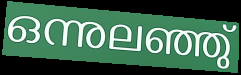
ഒന്നുലഞ്ഞു്